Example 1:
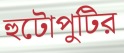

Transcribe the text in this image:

হুটোপুটির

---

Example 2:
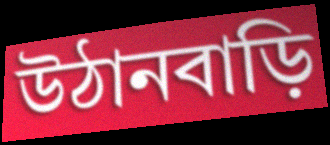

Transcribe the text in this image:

উঠানবাড়ি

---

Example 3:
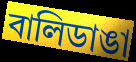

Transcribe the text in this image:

বালিডাঙা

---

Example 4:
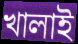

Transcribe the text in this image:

খালাই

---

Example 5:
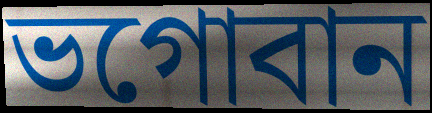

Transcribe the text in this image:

ভগোবান